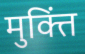
मुक्तिं